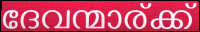
ദേവന്മാര്ക്ക്